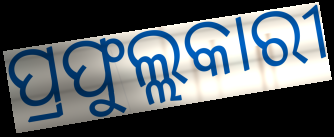
ପ୍ରଫୁଲ୍ଲକାରୀ